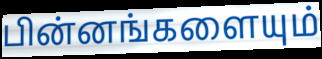
பின்னங்களையும்